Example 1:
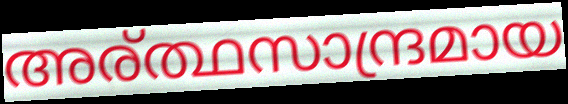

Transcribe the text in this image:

അര്ത്ഥസാന്ദ്രമായ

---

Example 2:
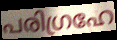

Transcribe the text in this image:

പരിഗ്രഹേ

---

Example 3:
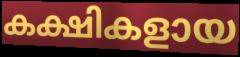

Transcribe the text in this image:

കക്ഷികളായ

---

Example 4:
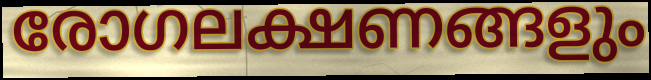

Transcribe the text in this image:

രോഗലക്ഷണങ്ങളും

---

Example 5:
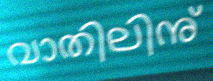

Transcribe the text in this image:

വാതിലിനു്